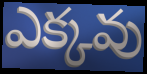
ఎక్కవు